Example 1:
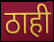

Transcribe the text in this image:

ठाही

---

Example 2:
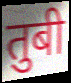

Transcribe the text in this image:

तुबी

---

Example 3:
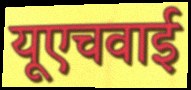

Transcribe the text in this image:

यूएचवाई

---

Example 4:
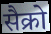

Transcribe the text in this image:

सैक्रो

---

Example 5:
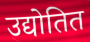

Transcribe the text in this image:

उद्योतित